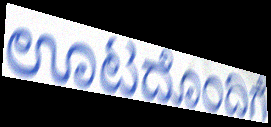
ಊಟದೊಂದಿಗೆ